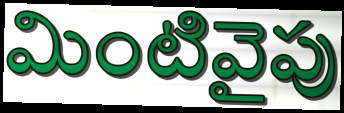
మింటివైపు